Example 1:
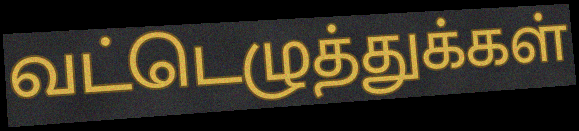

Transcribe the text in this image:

வட்டெழுத்துக்கள்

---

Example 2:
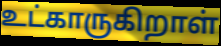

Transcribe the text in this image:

உட்காருகிறாள்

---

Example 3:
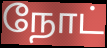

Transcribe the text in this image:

நோட்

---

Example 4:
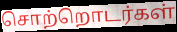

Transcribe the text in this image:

சொற்றொடர்கள்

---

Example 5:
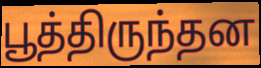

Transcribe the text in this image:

பூத்திருந்தன